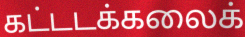
கட்டடக்கலைக்